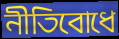
নীতিবোধে